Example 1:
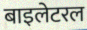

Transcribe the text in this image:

बाइलेटरल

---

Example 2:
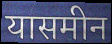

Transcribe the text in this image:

यासमीन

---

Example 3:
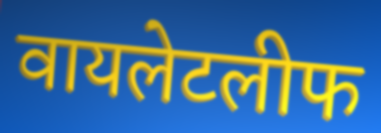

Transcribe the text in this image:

वायलेटलीफ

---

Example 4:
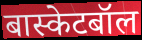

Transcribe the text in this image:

बास्केटबॉल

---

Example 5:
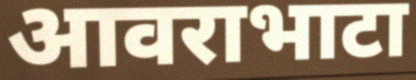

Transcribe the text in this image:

आवराभाटा